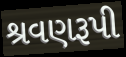
શ્રવણરૂપી